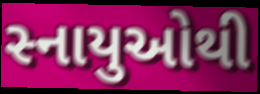
સ્નાયુઓથી